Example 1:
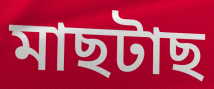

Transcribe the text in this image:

মাছটাছ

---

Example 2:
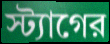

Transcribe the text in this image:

স্ট্যাগের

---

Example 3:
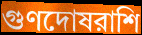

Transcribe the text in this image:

গুণদোষরাশি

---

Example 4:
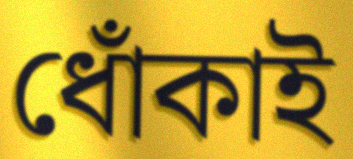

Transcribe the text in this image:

ধোঁকাই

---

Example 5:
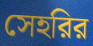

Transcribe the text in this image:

সেহরির